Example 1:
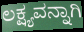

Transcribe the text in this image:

ಲಕ್ಷ್ಯವನ್ನಾಗಿ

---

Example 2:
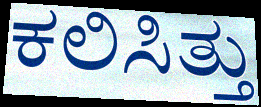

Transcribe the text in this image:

ಕಲಿಸಿತ್ತು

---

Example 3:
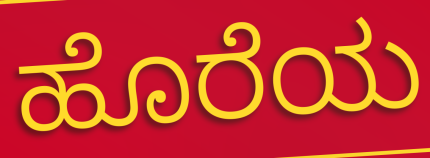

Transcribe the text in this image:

ಹೊರೆಯ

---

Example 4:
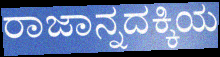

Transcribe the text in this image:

ರಾಜಾನ್ನದಕ್ಕಿಯ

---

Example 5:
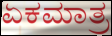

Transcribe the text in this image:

ಏಕಮಾತ್ರ